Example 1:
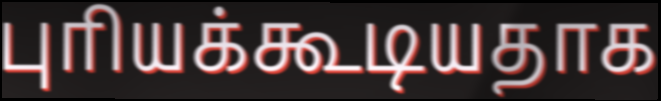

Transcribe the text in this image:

புரியக்கூடியதாக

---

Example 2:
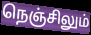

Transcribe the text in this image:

நெஞ்சிலும்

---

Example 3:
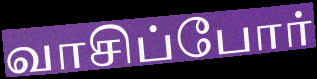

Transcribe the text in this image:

வாசிப்போர்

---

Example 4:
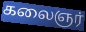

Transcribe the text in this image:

கலைஞர்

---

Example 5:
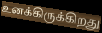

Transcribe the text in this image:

உனக்கிருக்கிறது